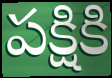
పక్షికి